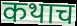
कथाच